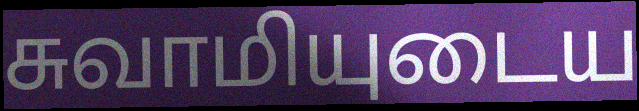
சுவாமியுடைய